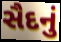
સૈદનું